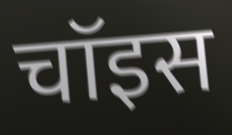
चॉइस